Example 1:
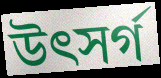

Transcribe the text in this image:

উৎসর্গ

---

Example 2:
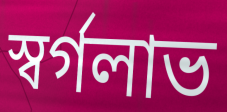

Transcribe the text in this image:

স্বর্গলাভ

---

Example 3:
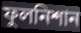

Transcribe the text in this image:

ফুলনিশান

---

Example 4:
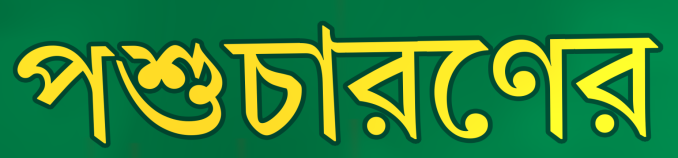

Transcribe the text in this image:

পশুচারণের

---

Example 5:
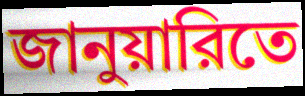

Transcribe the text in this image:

জানুয়ারিতে